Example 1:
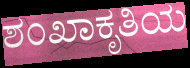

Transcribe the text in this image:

ಶಂಖಾಕೃತಿಯ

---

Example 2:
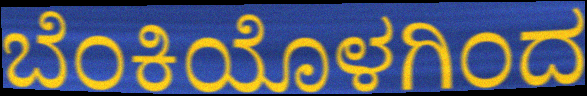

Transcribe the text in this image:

ಬೆಂಕಿಯೊಳಗಿಂದ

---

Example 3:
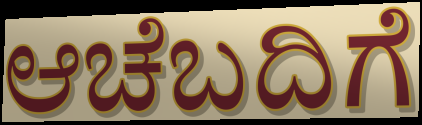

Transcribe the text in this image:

ಆಚೆಬದಿಗೆ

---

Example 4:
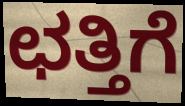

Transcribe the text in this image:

ಛತ್ತಿಗೆ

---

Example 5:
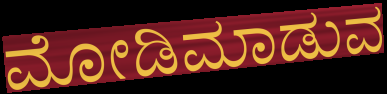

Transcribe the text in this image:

ಮೋಡಿಮಾಡುವ